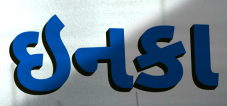
ઇનકા